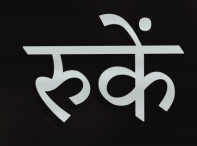
रुकें